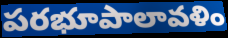
పరభూపాలావళిం